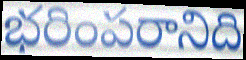
భరింపరానిది